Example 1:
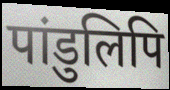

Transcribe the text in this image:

पांडुलिपि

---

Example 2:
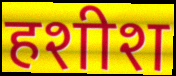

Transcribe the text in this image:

हशीश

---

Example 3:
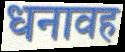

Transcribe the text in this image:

धनावह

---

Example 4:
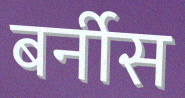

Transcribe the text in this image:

बर्नीस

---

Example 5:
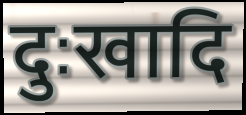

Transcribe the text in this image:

दुःखादि